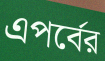
এপর্বের